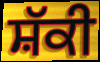
ਸ਼ੱਕੀ